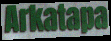
Arkatapa